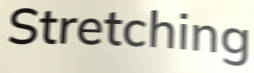
Stretching